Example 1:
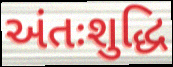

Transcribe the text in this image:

અંતઃશુદ્ધિ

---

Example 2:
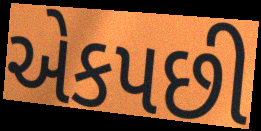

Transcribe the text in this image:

એકપછી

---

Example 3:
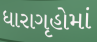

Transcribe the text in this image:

ધારાગૃહોમાં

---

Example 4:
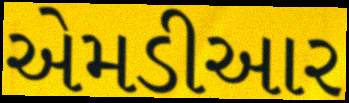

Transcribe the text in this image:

એમડીઆર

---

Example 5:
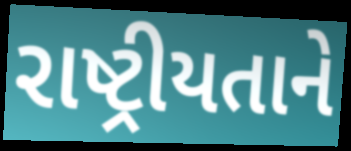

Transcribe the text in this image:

રાષ્ટ્રીયતાને